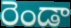
రెండా